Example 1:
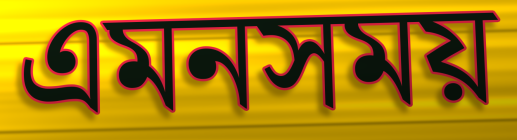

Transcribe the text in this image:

এমনসময়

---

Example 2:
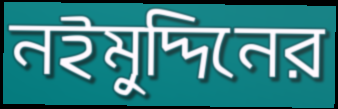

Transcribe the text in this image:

নইমুদ্দিনের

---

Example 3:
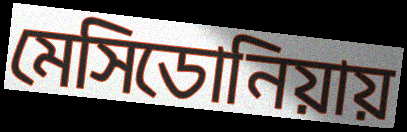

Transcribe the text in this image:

মেসিডোনিয়ায়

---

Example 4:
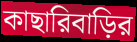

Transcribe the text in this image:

কাছারিবাড়ির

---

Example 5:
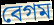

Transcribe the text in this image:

বেগম